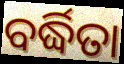
ବର୍ଦ୍ଧିତା